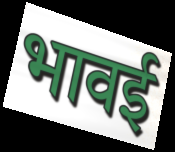
भावई